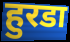
हुरडा